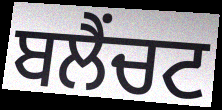
ਬਲੈਂਚਟ